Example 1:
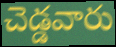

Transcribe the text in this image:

చెడ్డవారు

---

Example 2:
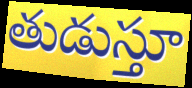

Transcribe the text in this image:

తుడుస్తూ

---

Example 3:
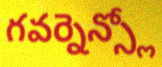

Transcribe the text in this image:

గవర్నెన్స్లో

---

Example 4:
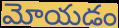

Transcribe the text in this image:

మోయడం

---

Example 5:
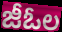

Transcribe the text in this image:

జీఓల